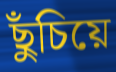
ছুঁচিয়ে